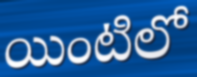
యింటిలో